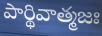
పార్థివాత్మజః